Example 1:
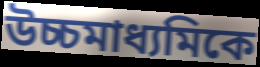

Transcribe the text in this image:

উচ্চমাধ্যমিকে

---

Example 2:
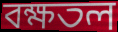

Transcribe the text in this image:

বক্ষতল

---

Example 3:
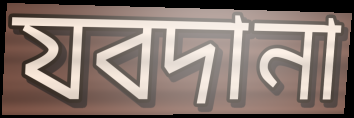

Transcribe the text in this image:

যবদানা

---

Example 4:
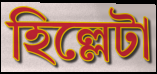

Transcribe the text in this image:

হিল্লেটা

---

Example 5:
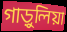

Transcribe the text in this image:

গাড়ুলিয়া